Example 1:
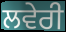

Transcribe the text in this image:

ਲਵੇਰੀ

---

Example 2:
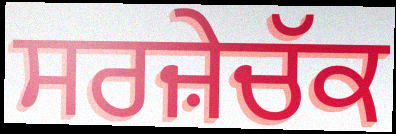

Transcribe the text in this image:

ਸਰਜ਼ੇਚੱਕ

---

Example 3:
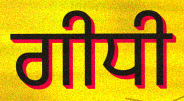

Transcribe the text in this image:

ਗੀਧੀ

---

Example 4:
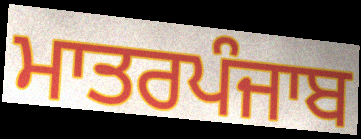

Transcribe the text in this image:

ਮਾਤਰਪੰਜਾਬ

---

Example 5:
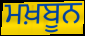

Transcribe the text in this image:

ਮਖ਼ਬੂਨ